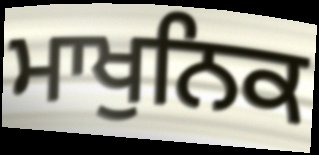
ਮਾਖੁਨਿਕ